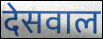
देसवाल